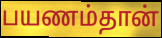
பயணம்தான்